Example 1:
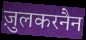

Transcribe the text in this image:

ज़ुलकरनैन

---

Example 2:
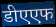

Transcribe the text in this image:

डीएएफ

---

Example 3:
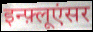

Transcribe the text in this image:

इन्फ़्लूएंसर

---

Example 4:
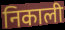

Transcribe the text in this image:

निकाली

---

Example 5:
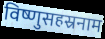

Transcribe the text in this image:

विष्णुसहस्रनाम